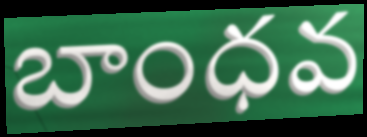
బాంధవ